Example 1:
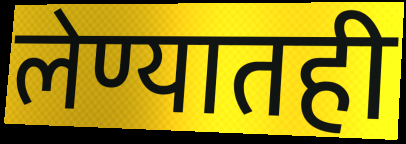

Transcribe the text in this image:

लेण्यातही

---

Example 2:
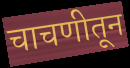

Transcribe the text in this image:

चाचणीतून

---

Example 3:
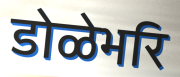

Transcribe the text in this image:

डोळेभरि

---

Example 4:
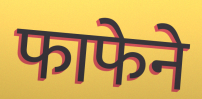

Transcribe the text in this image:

फाफेने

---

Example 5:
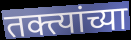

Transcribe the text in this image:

तक्त्यांच्या